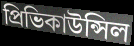
প্রিভিকাউন্সিল